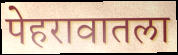
पेहरावातला